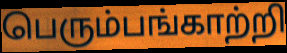
பெரும்பங்காற்றி